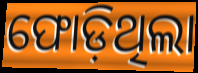
ଫୋଡ଼ିଥିଲା